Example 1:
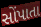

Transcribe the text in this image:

સોંપાતા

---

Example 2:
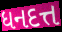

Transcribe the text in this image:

ધનદત્ત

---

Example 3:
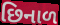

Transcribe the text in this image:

છિનાળ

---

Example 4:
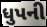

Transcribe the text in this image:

ધુપની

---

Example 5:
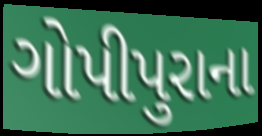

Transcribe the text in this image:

ગોપીપુરાના